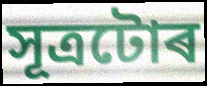
সূত্ৰটোৰ